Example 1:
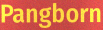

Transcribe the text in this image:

Pangborn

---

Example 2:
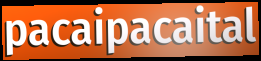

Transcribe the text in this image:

pacaipacaital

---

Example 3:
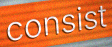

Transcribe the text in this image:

consist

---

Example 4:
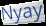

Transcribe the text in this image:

Nyay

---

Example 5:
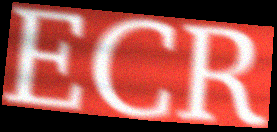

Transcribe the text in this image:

ECR